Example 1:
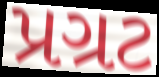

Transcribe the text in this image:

પ્રગ્રટ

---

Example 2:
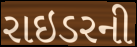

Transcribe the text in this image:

રાઇડરની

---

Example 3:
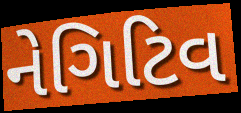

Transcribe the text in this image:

નેગિટિવ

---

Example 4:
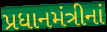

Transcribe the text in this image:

પ્રધાનમંત્રીનાં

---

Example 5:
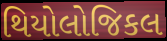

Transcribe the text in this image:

થિયોલોજિકલ